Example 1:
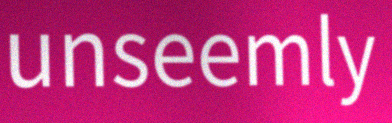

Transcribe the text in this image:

unseemly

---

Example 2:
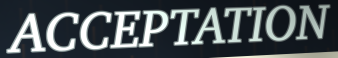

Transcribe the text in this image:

ACCEPTATION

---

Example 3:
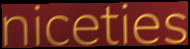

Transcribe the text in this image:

niceties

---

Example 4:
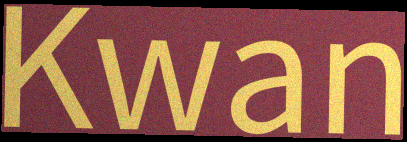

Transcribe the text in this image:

Kwan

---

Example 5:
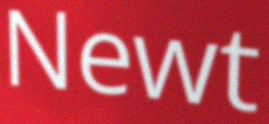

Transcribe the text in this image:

Newt